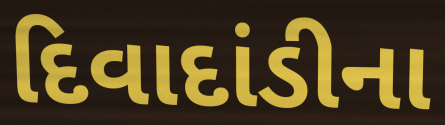
દિવાદાંડીના